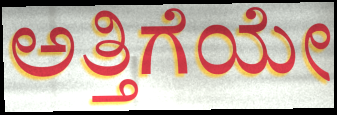
ಅತ್ತಿಗೆಯೇ